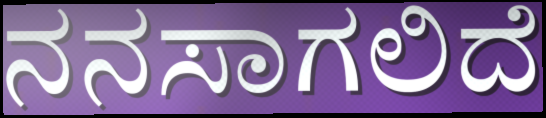
ನನಸಾಗಲಿದೆ